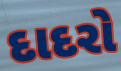
દાદરો